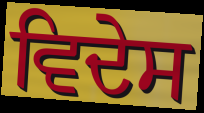
ਵਿਦੇਸ